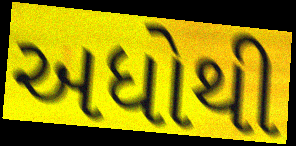
અધોથી